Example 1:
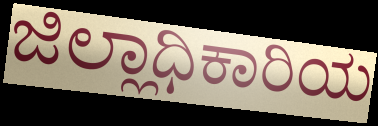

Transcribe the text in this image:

ಜಿಲ್ಲಾಧಿಕಾರಿಯ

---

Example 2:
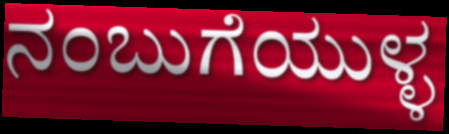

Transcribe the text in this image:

ನಂಬುಗೆಯುಳ್ಳ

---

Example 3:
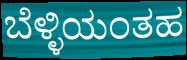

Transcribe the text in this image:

ಬೆಳ್ಳಿಯಂತಹ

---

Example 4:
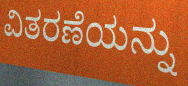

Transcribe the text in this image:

ವಿತರಣೆಯನ್ನು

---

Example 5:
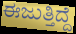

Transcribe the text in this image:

ಈಜುತ್ತಿದ್ದೆ